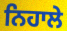
ਨਿਹਾਲੇ